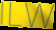
ILW